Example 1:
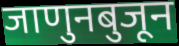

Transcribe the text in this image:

जाणुनबुजून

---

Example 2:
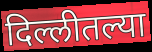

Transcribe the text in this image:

दिल्लीतल्या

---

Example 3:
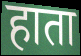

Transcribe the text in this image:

हाता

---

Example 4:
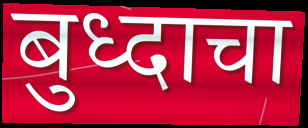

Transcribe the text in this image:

बुध्दाचा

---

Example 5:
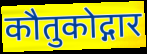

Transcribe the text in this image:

कौतुकोद्गार